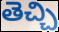
తెచ్చి